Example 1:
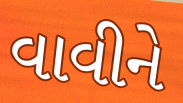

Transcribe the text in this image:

વાવીને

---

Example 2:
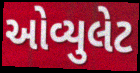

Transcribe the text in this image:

ઓવ્યુલેટ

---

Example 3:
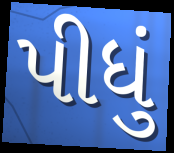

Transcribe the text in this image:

પીધું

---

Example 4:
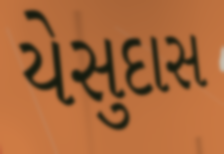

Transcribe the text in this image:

યેસુદાસ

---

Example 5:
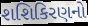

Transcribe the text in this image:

શશિકિરણનો